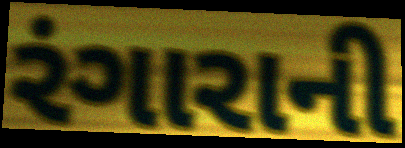
રંગારાની